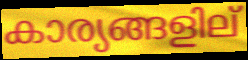
കാര്യങ്ങളില്